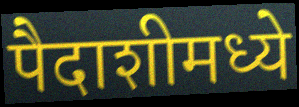
पैदाशीमध्ये